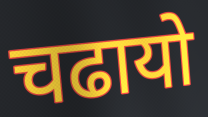
चढायो